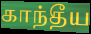
காந்தீய